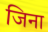
जिना